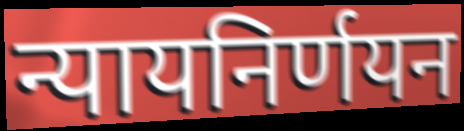
न्यायनिर्णयन